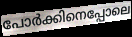
പോർക്കിനെപ്പോലെ